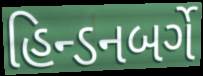
હિન્ડનબર્ગે